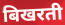
बिखरती